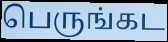
பெருங்கட